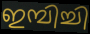
ഇമ്പിച്ചി